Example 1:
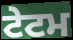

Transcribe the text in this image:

ਟੇਟਮ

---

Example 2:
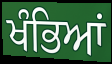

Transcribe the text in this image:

ਖੰਭਿਆਂ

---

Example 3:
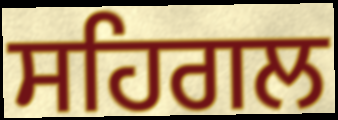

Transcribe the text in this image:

ਸਹਿਗਲ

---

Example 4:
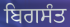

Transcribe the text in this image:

ਬਿਗਸੰਤ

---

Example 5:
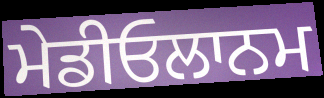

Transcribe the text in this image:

ਮੇਡੀਓਲਾਨਮ